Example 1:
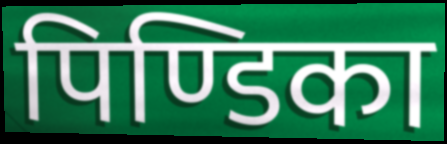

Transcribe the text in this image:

पिण्डिका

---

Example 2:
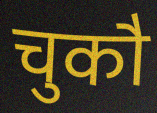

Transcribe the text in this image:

चुकौ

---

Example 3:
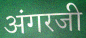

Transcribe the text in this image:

अंगरजी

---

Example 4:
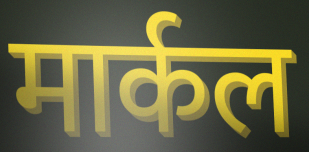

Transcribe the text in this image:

मार्कल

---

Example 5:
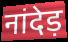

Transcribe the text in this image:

नांदेड़